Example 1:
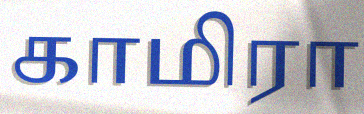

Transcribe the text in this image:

காமிரா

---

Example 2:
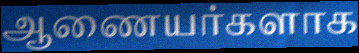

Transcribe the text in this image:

ஆணையர்களாக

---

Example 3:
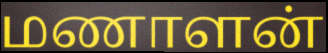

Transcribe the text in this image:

மணாளன்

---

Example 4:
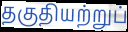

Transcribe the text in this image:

தகுதியற்றுப்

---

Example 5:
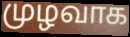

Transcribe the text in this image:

முழவாக